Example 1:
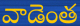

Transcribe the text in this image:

వాడెంత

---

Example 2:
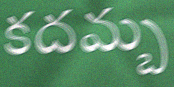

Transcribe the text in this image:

కదమ్బ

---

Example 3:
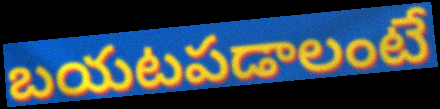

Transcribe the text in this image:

బయటపడాలంటే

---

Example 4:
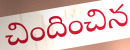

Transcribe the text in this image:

చిందించిన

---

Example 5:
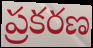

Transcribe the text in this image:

ప్రకరణ